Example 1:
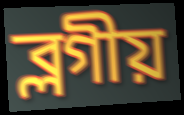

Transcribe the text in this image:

ব্লগীয়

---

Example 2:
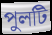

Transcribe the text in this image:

পুলটি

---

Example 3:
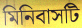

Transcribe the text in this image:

মিনিবাসটি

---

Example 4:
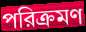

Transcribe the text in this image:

পরিক্রমণ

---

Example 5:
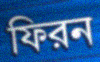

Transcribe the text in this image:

ফিরন